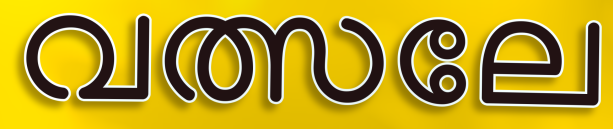
വത്സലേ